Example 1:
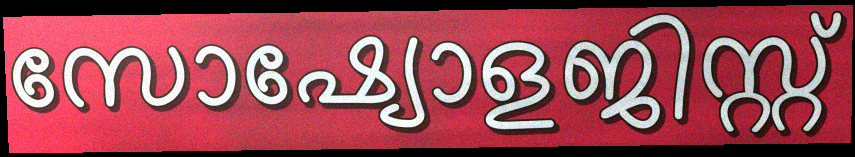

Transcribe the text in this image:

സോഷ്യോളജിസ്റ്റ്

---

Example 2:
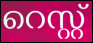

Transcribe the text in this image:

റെസ്റ്റ്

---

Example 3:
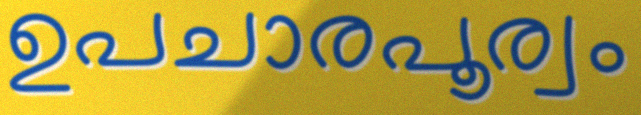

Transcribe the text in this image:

ഉപചാരപൂര്വം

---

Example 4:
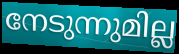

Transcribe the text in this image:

നേടുന്നുമില്ല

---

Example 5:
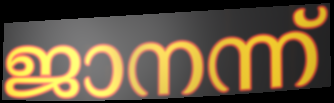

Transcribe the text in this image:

ജാനന്ന്